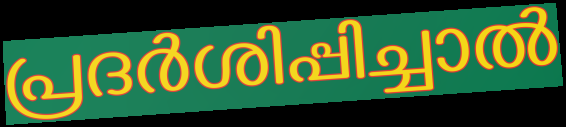
പ്രദർശിപ്പിച്ചാൽ